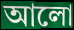
আলো